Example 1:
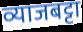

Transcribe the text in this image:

व्याजबट्टा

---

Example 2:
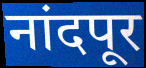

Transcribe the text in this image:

नांदपूर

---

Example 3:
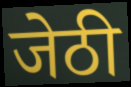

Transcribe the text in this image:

जेठी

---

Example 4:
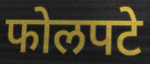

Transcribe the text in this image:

फोलपटे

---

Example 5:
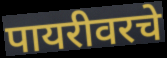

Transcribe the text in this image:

पायरीवरचे